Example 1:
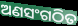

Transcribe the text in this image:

ଅଣସଂଗଠିତ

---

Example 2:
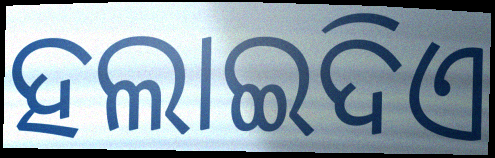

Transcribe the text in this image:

ହଲାଇଦିଏ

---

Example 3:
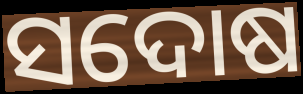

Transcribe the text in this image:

ସଦୋଷ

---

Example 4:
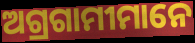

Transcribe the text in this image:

ଅଗ୍ରଗାମୀମାନେ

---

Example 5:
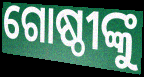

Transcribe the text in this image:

ଗୋଷ୍ଠୀଙ୍କୁ